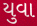
યુવા